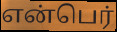
என்பெர்